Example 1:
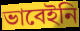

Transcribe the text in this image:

ভাবেইনি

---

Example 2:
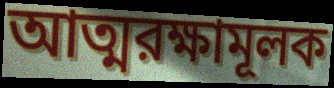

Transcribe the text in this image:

আত্মরক্ষামূলক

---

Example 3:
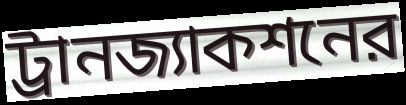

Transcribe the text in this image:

ট্রানজ্যাকশনের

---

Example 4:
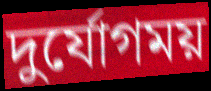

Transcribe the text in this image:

দুর্যোগময়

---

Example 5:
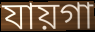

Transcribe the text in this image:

যায়গা